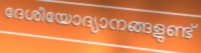
ദേശീയോദ്യാനങ്ങളുണ്ട്